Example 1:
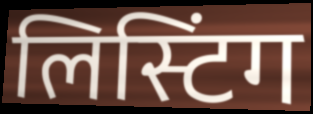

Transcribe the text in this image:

लिस्टिंग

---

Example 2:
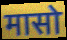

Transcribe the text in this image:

मासो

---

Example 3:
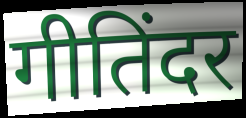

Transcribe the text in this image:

गीतिंदर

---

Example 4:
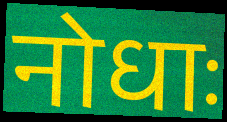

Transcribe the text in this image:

नोधाः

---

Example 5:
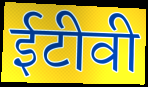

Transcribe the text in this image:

ईटीवी